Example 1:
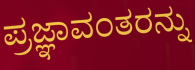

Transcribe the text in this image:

ಪ್ರಜ್ಞಾವಂತರನ್ನು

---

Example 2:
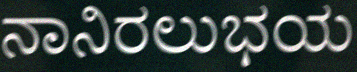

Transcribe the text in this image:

ನಾನಿರಲುಭಯ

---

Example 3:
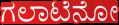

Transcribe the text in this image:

ಗಲಾಟೆನೋ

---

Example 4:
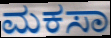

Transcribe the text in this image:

ಮಕಸಾ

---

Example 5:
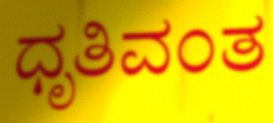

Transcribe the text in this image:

ಧೃತಿವಂತ